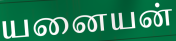
யனையன்